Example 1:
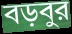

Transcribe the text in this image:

বড়বুর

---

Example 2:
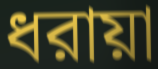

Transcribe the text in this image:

ধরায়া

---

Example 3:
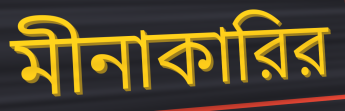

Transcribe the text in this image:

মীনাকারির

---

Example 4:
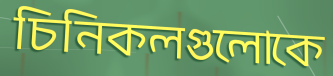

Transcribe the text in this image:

চিনিকলগুলোকে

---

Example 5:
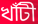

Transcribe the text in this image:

খাঁটী